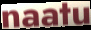
naatu